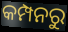
କମ୍ପନରୁ